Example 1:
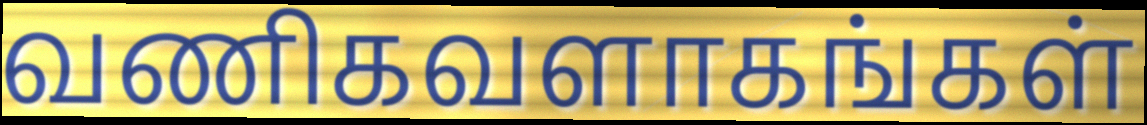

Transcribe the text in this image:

வணிகவளாகங்கள்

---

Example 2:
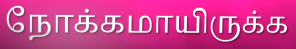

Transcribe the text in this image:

நோக்கமாயிருக்க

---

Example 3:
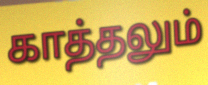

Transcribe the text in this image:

காத்தலும்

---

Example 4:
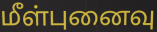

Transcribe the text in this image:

மீள்புனைவு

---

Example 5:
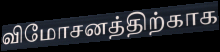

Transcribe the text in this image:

விமோசனத்திற்காக